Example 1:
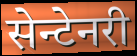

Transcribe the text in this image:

सेन्टेनरी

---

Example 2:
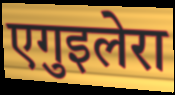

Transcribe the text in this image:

एगुइलेरा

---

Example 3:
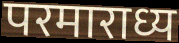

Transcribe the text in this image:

परमाराध्य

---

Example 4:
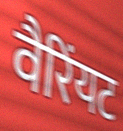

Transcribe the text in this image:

वैरिंयट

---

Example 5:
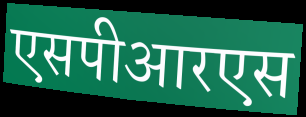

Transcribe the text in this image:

एसपीआरएस